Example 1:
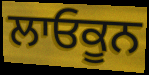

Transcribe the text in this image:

ਲਾਓਕੂਨ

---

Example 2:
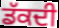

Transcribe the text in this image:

ਡੱਕਦੀ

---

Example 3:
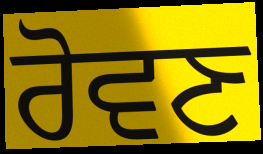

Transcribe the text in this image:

ਰੋਵਣ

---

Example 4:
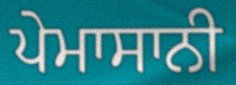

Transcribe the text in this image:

ਪੇਮਾਸਾਨੀ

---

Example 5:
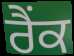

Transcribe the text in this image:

ਰੈੰਕ